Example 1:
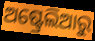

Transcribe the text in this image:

ଅଷ୍ଟ୍ରେଲିଆରୁ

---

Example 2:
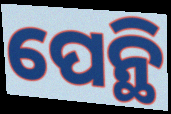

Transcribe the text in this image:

ପେନ୍ଥି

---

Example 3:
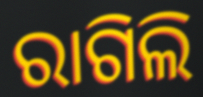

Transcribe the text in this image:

ରାଗିଲି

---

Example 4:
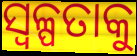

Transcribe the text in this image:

ସ୍ଵଳ୍ପତାକୁ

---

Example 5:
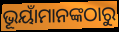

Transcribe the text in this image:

ଭୂୟାଁମାନଙ୍କଠାରୁ